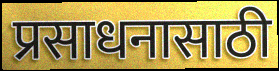
प्रसाधनासाठी